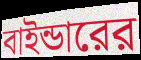
বাইন্ডারের